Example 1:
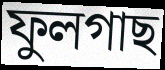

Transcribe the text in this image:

ফুলগাছ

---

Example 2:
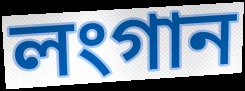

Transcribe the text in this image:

লংগান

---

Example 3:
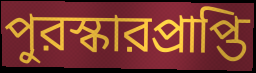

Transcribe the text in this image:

পুরস্কারপ্রাপ্তি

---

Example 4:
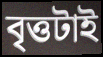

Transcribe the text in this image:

বৃত্তটাই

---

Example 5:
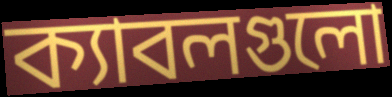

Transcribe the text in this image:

ক্যাবলগুলো